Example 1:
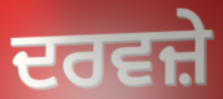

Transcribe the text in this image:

ਦਰਵਜ਼ੇ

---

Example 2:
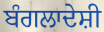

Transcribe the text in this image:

ਬੰਗਲਾਦੇਸ਼ੀ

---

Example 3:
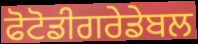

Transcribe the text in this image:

ਫੋਟੋਡੀਗਰੇਡੇਬਲ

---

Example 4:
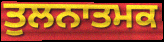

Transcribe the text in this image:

ਤੁਲਨਾਤਮਕ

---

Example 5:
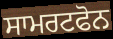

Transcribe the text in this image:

ਸਾਮਰਟਫੋਨ